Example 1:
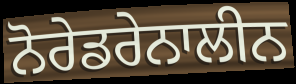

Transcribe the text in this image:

ਨੋਰੇਡਰੇਨਾਲੀਨ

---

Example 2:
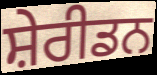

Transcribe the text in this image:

ਸ਼ੇਰੀਡਨ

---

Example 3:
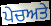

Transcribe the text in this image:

ਪੇਚਅਤੇ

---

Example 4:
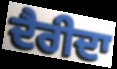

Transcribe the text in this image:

ਦੈਰੀਦਾ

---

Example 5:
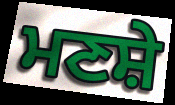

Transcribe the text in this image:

ਮਣਸ਼ੇ